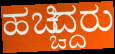
ಹಚ್ಚಿದ್ದರು